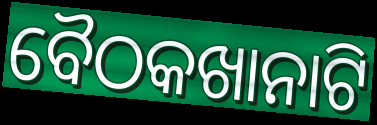
ବୈଠକଖାନାଟି